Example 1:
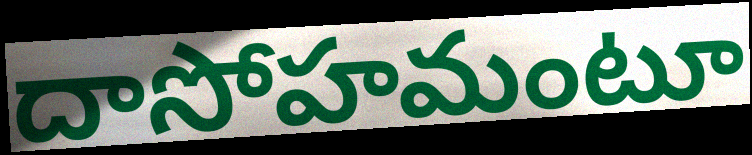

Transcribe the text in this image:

దాసోహమంటూ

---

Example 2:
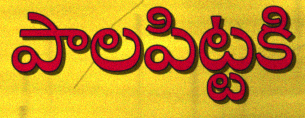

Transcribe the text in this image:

పాలపిట్టకి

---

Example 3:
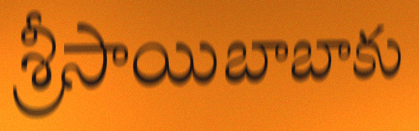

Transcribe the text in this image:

శ్రీసాయిబాబాకు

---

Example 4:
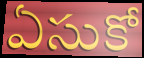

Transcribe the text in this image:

ఏసుకో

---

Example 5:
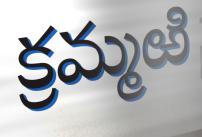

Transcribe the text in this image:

క్రమ్మఱి